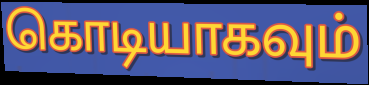
கொடியாகவும்